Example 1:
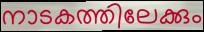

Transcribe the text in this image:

നാടകത്തിലേക്കും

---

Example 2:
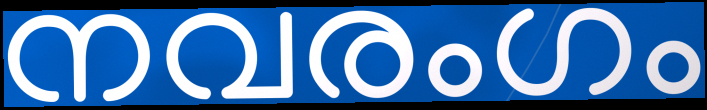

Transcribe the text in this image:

നവരംഗം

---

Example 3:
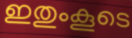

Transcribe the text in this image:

ഇതുംകൂടെ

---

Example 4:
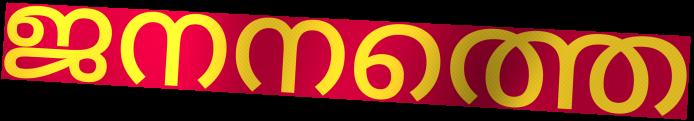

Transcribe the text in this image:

ജനനത്തെ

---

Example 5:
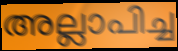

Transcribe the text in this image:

അല്ലാപിച്ച